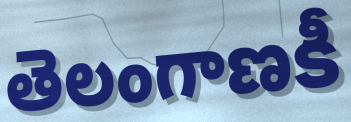
తెలంగాణకీ